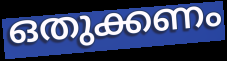
ഒതുക്കണം